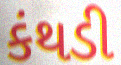
કંથડી